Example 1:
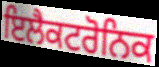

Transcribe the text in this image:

ਇਲੈਕਟਰੋਨਿਕ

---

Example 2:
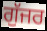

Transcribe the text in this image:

ਗੁੱਜਰ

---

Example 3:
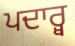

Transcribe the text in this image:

ਪਦਾਰ੍ਥ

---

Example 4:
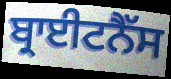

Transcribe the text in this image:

ਬ੍ਰਾਈਟਨੈੱਸ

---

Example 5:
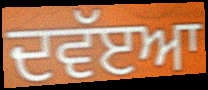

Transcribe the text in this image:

ਦਵੱੲਆ